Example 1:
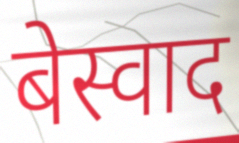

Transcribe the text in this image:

बेस्वाद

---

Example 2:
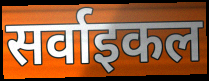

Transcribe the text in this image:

सर्वाइकल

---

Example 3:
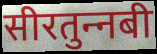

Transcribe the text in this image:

सीरतुन्नबी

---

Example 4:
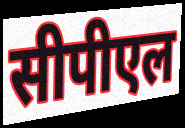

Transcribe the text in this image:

सीपीएल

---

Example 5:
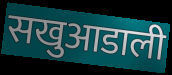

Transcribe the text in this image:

सखुआडाली